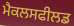
ਮੈਕਲਸਫੀਲਡ